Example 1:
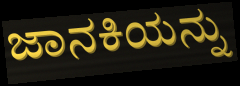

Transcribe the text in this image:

ಜಾನಕಿಯನ್ನು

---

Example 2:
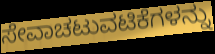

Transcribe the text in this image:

ಸೇವಾಚಟುವಟಿಕೆಗಳನ್ನು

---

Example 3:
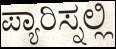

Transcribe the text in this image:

ಪ್ಯಾರಿಸ್ನಲ್ಲಿ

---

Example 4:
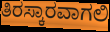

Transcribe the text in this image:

ತಿರಸ್ಕಾರವಾಗಲಿ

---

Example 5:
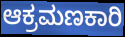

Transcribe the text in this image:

ಆಕ್ರಮಣಕಾರಿ